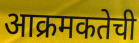
आक्रमकतेची